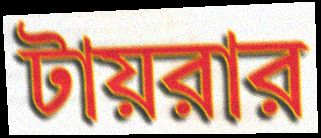
টায়রার